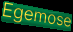
Egemose